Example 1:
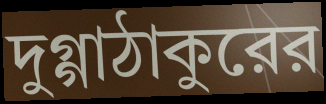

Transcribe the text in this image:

দুগ্গাঠাকুরের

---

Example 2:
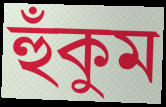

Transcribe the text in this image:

হুঁকুম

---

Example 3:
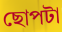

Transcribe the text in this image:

ছোপটা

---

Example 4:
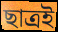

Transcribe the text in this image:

ছাত্রই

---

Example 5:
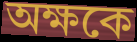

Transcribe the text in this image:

অক্ষকে